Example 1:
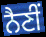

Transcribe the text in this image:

ਨੈਣੀਂ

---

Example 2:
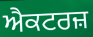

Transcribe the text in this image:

ਐਕਟਰਜ਼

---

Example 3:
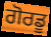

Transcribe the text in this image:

ਗੋਰਡੂ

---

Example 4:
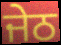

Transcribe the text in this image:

ਜੇਠ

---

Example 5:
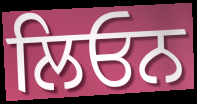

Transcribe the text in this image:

ਲਿਓਨ